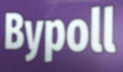
Bypoll